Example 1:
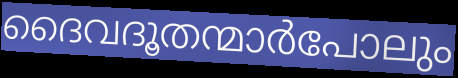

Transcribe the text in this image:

ദൈവദൂതന്മാർപോലും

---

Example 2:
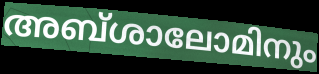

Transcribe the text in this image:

അബ്ശാലോമിനും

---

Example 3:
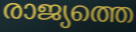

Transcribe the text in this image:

രാജ്യത്തെ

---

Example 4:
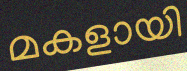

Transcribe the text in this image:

മകളായി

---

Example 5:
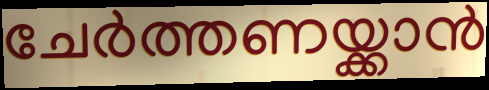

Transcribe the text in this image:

ചേർത്തണയ്ക്കാൻ